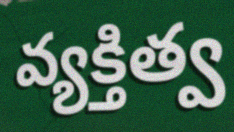
వ్యక్తిత్వ